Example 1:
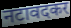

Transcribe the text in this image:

नटावदकर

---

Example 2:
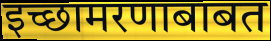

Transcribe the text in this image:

इच्छामरणाबाबत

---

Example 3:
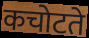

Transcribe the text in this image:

कचोटते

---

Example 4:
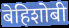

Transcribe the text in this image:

बेहिशोबी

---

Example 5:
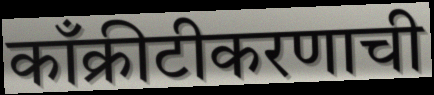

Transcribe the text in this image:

काँक्रीटीकरणाची